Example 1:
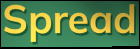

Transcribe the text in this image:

Spread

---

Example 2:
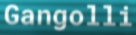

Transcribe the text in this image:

Gangolli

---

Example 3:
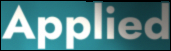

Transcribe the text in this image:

Applied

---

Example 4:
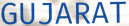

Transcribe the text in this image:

GUJARAT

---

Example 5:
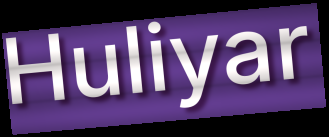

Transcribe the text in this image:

Huliyar